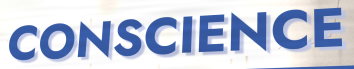
CONSCIENCE